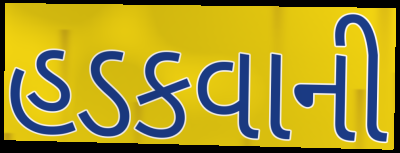
હડકવાની